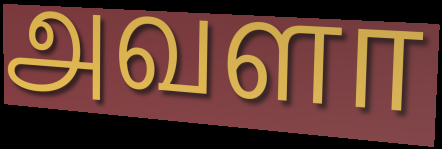
அவளா